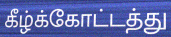
கீழ்க்கோட்டத்து